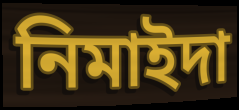
নিমাইদা